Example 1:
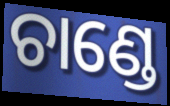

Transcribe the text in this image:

ଚାଣ୍ଡେ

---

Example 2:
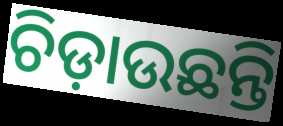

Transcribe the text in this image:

ଚିଡ଼ାଉଛନ୍ତି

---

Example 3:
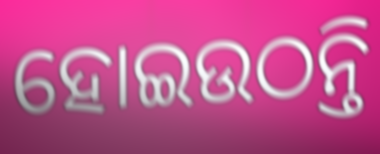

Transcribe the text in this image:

ହୋଇଉଠନ୍ତି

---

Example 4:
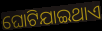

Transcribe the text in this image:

ଘୋଟିଯାଇଥାଏ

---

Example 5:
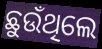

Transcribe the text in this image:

ଛୁଉଁଥିଲେ